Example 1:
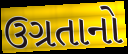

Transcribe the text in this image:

ઉગ્રતાનો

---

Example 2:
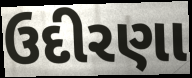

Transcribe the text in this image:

ઉદીરણા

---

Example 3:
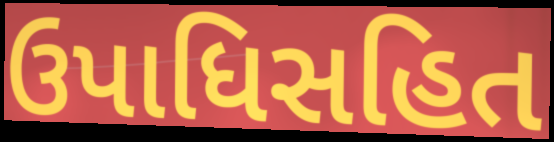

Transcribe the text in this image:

ઉપાધિસહિત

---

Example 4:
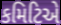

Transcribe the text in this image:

કમિટિએ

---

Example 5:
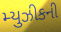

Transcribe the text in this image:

મ્યુઝીકની